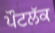
ਪੌਟਲੱਕ